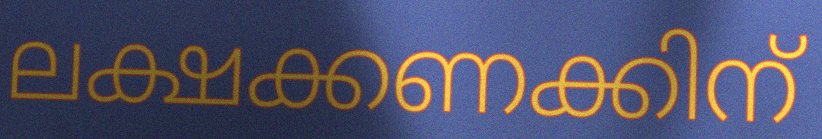
ലക്ഷക്കണക്കിന്